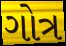
ગોત્ર